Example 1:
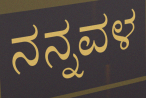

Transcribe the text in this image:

ನನ್ನವಳ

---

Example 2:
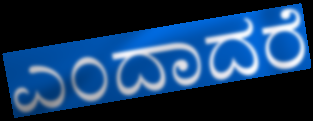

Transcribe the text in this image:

ಎಂದಾದರೆ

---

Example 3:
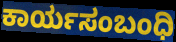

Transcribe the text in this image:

ಕಾರ್ಯಸಂಬಂಧಿ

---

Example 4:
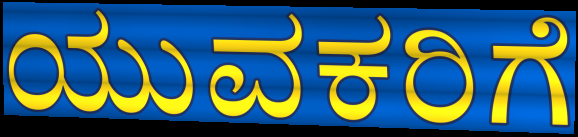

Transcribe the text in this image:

ಯುವಕರಿಗೆ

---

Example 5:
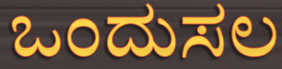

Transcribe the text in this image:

ಒಂದುಸಲ